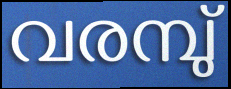
വരമ്പു്